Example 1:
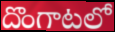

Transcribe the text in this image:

దొంగాటలో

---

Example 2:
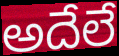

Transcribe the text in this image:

అదేలే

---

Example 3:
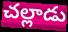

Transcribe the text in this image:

చల్లాడు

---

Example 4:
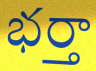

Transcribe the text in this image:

భర్తా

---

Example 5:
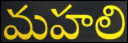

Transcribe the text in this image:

మహలి